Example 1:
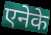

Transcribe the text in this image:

एनेके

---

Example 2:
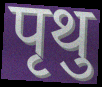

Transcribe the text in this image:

पृथु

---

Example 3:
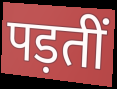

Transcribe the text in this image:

पड़तीं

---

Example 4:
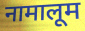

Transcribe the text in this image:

नामालूम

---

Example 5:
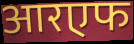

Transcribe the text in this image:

आरएफ